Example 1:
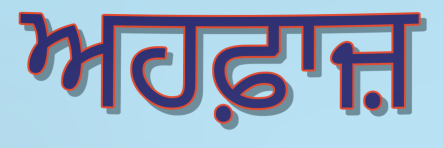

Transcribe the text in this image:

ਅਹਫ਼ਾਜ਼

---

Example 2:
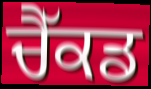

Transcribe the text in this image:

ਚੈੱਕਡ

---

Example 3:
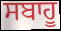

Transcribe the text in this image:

ਸਬਾਹੂ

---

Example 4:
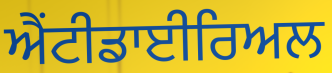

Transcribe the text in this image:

ਐਂਟੀਡਾਈਰਿਅਲ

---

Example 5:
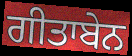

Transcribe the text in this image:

ਗੀਤਾਬੇਨ